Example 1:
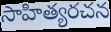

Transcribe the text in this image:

సాహిత్యరచన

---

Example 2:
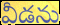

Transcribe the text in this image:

వీడను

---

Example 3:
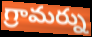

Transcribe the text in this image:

గ్రామర్ను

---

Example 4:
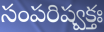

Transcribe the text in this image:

సంపరిష్వక్తః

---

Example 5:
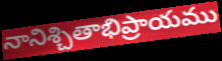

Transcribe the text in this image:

నానిశ్చితాభిప్రాయము